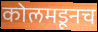
कोलमडूनच